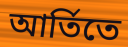
আর্তিতে